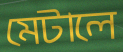
মেটালে